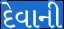
દેવાની